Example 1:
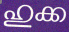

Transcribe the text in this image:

ഹുക്ക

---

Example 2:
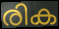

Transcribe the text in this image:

രിക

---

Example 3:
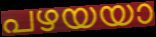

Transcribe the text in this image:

പഴയയാ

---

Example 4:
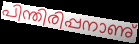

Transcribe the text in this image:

പിന്തിരിപ്പനാണു്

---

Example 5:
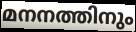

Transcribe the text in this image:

മനനത്തിനും